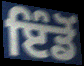
ਇੰਡੋਂ